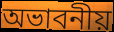
অভাবনীয়